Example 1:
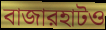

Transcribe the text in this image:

বাজারহাটও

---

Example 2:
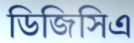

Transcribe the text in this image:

ডিজিসিএ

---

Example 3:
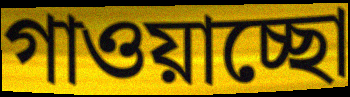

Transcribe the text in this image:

গাওয়াচ্ছো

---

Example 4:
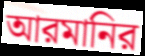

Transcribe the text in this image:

আরমানির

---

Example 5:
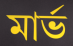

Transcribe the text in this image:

মার্ভ